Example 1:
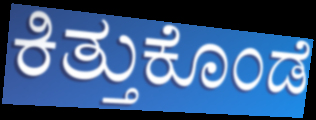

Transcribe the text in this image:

ಕಿತ್ತುಕೊಂಡೆ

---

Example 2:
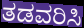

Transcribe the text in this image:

ತಡವರಿಸಿ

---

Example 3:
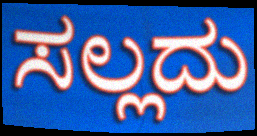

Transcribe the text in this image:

ಸಲ್ಲದು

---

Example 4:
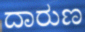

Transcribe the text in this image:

ದಾರುಣ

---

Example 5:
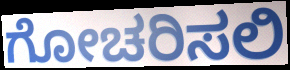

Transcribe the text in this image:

ಗೋಚರಿಸಲಿ